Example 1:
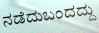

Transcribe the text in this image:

ನಡೆದುಬಂದದ್ದು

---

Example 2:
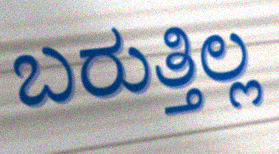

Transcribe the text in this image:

ಬರುತ್ತಿಲ್ಲ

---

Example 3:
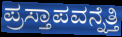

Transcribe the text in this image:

ಪ್ರಸ್ತಾಪವನ್ನೆತ್ತಿ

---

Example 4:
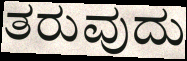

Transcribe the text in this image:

ತರುವುದು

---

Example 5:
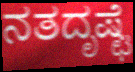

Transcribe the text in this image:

ನತದೃಷ್ಟೆ